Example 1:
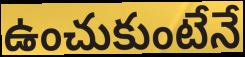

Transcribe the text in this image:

ఉంచుకుంటేనే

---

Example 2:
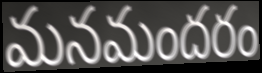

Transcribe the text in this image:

మనమందరం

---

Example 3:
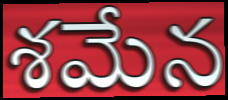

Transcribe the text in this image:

శమేన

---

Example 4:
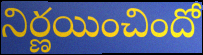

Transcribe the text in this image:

నిర్ణయించిందో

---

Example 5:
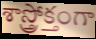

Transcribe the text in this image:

శాస్త్రోక్తంగా